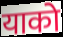
याको